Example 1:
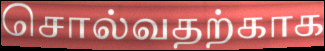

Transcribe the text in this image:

சொல்வதற்காக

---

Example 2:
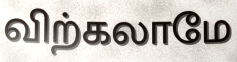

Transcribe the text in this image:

விற்கலாமே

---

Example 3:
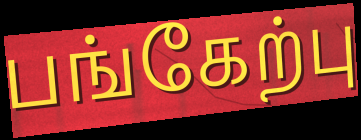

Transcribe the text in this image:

பங்கேற்பு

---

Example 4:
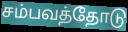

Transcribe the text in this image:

சம்பவத்தோடு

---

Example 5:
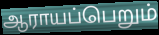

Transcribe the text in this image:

ஆராயப்பெறும்